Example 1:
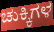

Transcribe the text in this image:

ಚುಕ್ಕಿಗಳ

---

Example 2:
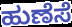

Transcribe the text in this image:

ಹುಣೆಸೆ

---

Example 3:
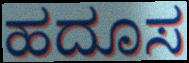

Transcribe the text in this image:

ಹದೂಸ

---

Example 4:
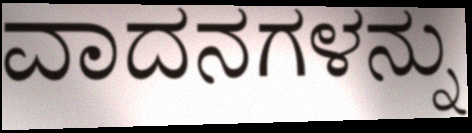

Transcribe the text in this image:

ವಾದನಗಳನ್ನು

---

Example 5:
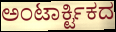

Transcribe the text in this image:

ಅಂಟಾರ್ಕ್ಟಿಕದ